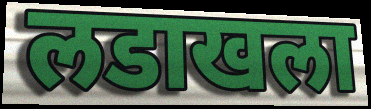
लडाखला